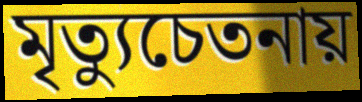
মৃত্যুচেতনায়